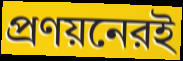
প্রণয়নেরই